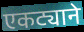
एकट्याने